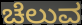
ಚೆಲುವ